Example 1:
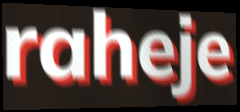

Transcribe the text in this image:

raheje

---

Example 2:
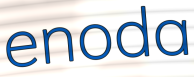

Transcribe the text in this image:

enoda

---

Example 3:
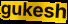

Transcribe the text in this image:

gukesh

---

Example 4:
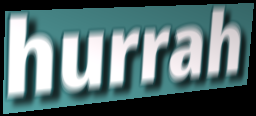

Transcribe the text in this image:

hurrah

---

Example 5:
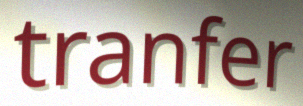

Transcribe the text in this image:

tranfer